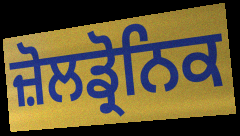
ਜ਼ੋਲਡ੍ਰੋਨਿਕ